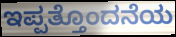
ಇಪ್ಪತ್ತೊಂದನೆಯ